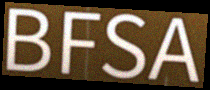
BFSA